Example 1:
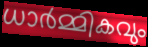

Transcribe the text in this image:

ധാർമ്മികവും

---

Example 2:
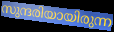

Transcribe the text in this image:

സുന്ദരിയായിരുന്ന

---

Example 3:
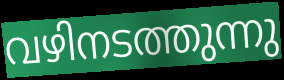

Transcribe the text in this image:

വഴിനടത്തുന്നു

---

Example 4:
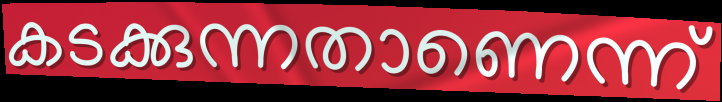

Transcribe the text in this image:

കടക്കുന്നതാണെന്ന്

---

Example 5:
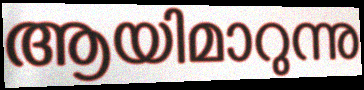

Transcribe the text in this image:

ആയിമാറുന്നു